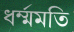
ধর্ম্মমতি